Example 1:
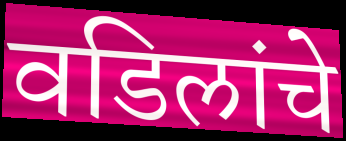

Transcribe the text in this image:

वडिलांचे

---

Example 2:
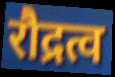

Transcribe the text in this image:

रौद्रत्व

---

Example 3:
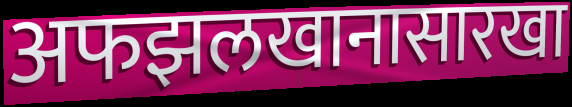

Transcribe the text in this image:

अफझलखानासारखा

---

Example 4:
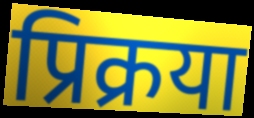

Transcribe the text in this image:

प्रिक्रया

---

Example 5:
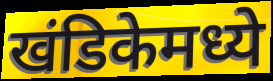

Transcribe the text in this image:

खंडिकेमध्ये